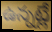
ఉన్నట్లే